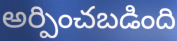
అర్పించబడింది